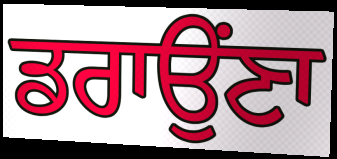
ਡਰਾਉਂਣਾ